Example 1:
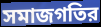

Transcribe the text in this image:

সমাজগতির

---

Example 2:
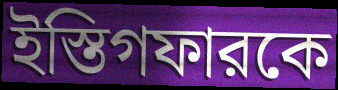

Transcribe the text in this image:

ইস্তিগফারকে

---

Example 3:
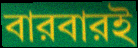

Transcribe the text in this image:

বারবারই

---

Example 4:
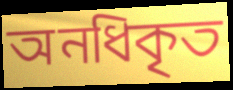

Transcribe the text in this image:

অনধিকৃত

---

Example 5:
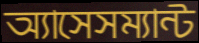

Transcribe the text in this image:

অ্যাসেসম্যান্ট